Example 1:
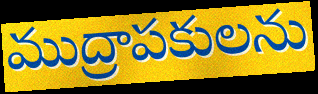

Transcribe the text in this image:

ముద్రాపకులను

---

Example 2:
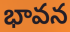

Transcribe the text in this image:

భావన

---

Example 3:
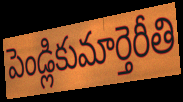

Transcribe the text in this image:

పెండ్లికుమార్తెరీతి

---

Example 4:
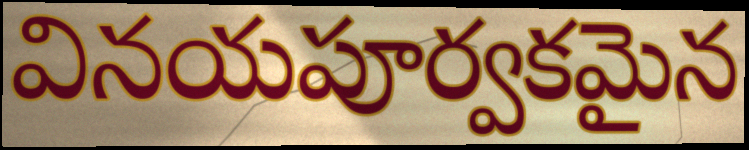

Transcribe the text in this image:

వినయపూర్వకమైన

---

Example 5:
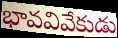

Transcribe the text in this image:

భావవివేకుడు